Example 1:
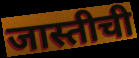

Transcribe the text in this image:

जास्तीची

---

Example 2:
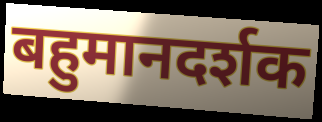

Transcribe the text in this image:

बहुमानदर्शक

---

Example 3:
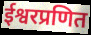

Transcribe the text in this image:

ईश्वरप्रणित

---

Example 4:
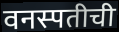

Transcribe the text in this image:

वनस्पतीची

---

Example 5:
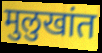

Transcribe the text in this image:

मुलुखांत